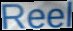
Reel